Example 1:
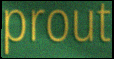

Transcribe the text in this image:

prout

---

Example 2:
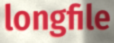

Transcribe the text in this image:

longfile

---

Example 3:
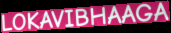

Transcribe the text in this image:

LOKAVIBHAAGA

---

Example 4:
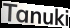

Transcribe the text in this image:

Tanuki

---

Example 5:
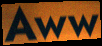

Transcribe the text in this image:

Aww